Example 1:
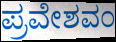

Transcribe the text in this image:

ಪ್ರವೇಶವಂ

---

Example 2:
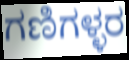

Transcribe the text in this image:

ಗಣಿಗಳ್ಳರ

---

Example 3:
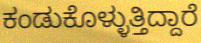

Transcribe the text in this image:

ಕಂಡುಕೊಳ್ಳುತ್ತಿದ್ದಾರೆ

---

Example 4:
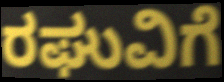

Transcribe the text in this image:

ರಘುವಿಗೆ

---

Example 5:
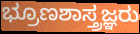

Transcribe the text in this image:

ಭ್ರೂಣಶಾಸ್ತ್ರಜ್ಞರು